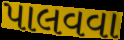
પાલવવા